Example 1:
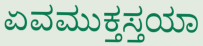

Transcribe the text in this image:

ಏವಮುಕ್ತಸ್ತಯಾ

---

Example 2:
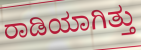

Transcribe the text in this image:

ರಾಡಿಯಾಗಿತ್ತು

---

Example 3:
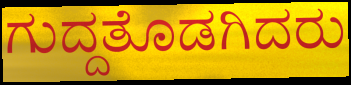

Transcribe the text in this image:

ಗುದ್ದತೊಡಗಿದರು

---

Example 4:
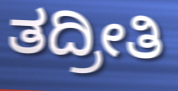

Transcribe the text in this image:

ತದ್ರೀತಿ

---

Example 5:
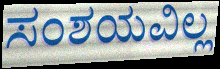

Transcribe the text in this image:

ಸಂಶಯವಿಲ್ಲ